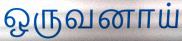
ஒருவனாய்